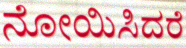
ನೋಯಿಸಿದರೆ